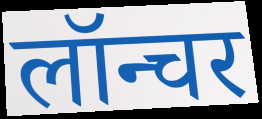
लॉन्चर